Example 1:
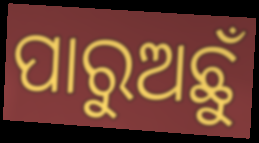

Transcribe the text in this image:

ପାରୁଅଛୁଁ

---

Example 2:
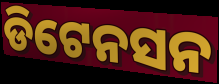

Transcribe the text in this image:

ଡିଟେନସନ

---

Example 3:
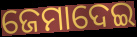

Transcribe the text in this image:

ଜେମାଦେଇ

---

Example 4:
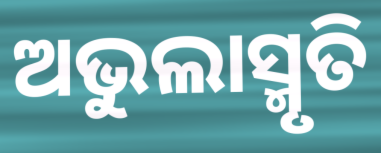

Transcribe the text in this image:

ଅଭୁଲାସ୍ମୃତି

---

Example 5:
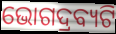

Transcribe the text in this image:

ଭୋଗଦ୍ରବ୍ୟଟି